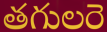
తగులరె